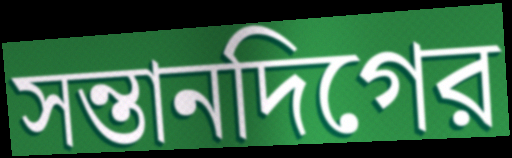
সন্তানদিগের